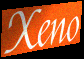
Xeno